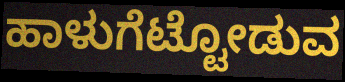
ಹಾಳುಗೆಟ್ಟೋಡುವ